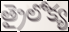
త్రైలోక్య